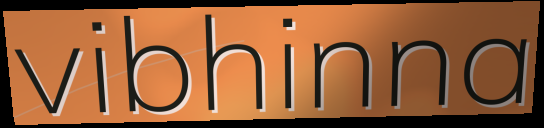
vibhinna